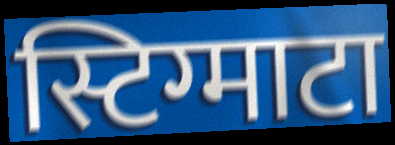
स्टिग्माटा